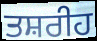
ਤਸ਼ਰੀਹ